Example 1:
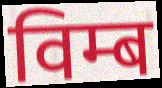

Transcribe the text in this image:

विम्ब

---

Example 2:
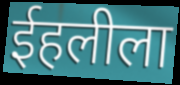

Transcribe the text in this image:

ईहलीला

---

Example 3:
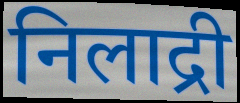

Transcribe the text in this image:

निलाद्री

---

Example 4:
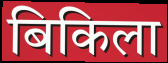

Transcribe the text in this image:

बिकिला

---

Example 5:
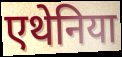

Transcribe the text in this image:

एथेनिया